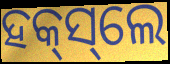
ହକ୍‌ସ୍‌ଲେ